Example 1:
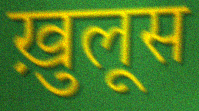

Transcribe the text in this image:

ख़ुलूस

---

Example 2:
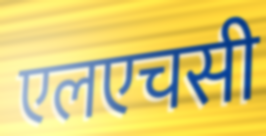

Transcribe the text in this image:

एलएचसी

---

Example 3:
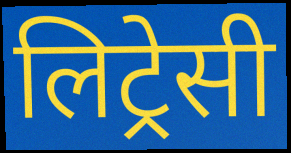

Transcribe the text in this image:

लिट्रेसी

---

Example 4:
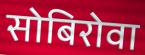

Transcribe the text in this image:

सोबिरोवा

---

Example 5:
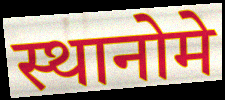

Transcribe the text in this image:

स्थानोमे